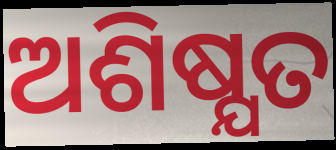
ଅଶିଷ୍ଯତ